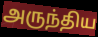
அருந்திய